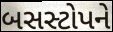
બસસ્ટોપને